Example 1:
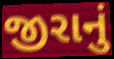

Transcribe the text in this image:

જીરાનું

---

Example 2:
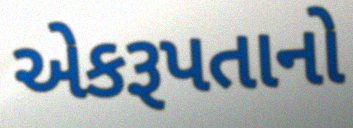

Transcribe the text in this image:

એકરૂપતાનો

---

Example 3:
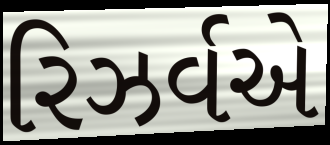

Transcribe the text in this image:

રિઝર્વએ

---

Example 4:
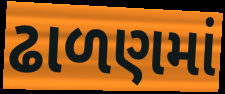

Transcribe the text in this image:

ઢાળણમાં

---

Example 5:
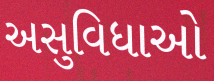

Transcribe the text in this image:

અસુવિધાઓ